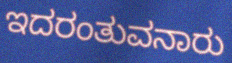
ಇದರಂತುವನಾರು